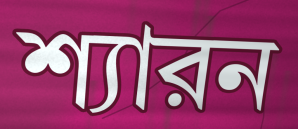
শ্যারন